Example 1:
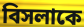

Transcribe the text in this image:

বিসলাকে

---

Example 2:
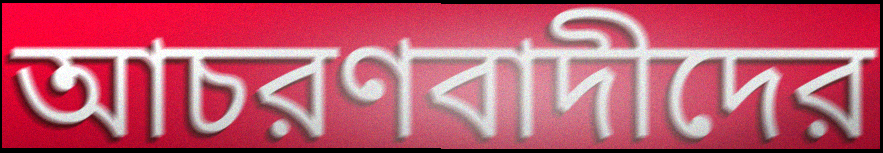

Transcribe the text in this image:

আচরণবাদীদের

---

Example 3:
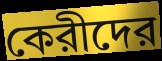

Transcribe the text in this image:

কেরীদের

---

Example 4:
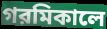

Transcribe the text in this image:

গরমিকালে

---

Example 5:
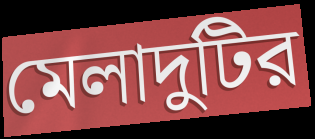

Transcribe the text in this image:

মেলাদুটির